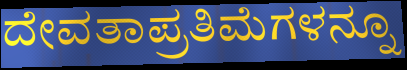
ದೇವತಾಪ್ರತಿಮೆಗಳನ್ನೂ